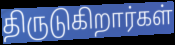
திருடுகிறார்கள்